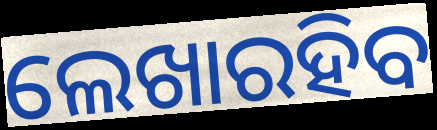
ଲେଖାରହିବ